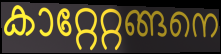
കാറ്റേറ്റങ്ങനെ